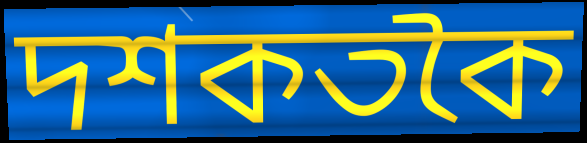
দশকতকৈ